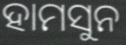
ହାମସୁନ